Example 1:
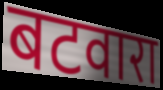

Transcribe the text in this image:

बटवारा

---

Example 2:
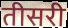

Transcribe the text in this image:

तीसरी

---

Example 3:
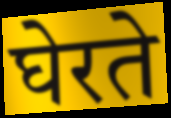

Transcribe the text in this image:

घेरते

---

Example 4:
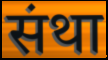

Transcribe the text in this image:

संथा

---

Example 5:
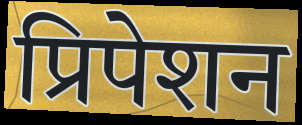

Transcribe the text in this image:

प्रिपेशन